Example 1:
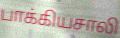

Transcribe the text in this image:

பாக்கியசாலி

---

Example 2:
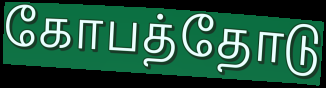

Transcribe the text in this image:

கோபத்தோடு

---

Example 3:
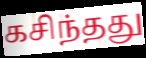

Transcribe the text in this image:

கசிந்தது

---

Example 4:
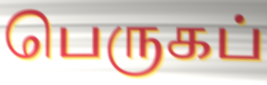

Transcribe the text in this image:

பெருகப்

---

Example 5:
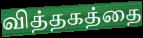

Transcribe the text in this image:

வித்தகத்தை